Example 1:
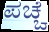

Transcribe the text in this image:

ಪಚ್ಚೆ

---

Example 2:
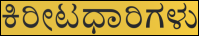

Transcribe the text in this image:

ಕಿರೀಟಧಾರಿಗಳು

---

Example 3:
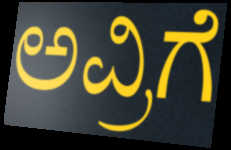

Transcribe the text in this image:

ಅವ್ರಿಗೆ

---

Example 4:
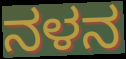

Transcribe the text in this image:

ನಳನ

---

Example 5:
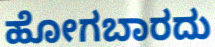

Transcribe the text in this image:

ಹೋಗಬಾರದು